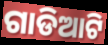
ଗାଡିଆଟି